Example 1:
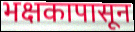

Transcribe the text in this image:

भक्षकापासून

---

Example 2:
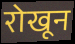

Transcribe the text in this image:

रोखून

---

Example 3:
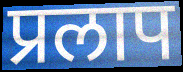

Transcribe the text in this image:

प्रलाप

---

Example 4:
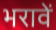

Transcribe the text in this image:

भरावें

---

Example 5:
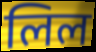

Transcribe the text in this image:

लिल